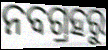
ନବଗ୍ରହରୁ